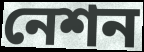
নেশন